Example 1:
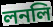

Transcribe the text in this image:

লনলি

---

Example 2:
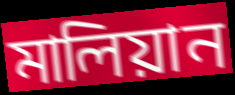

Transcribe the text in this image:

মালিয়ান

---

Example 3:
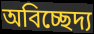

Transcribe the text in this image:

অবিচ্ছেদ্য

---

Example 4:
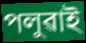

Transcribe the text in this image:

পলুৱাই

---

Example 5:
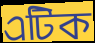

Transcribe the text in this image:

এটিক